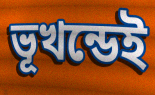
ভূখন্ডেই